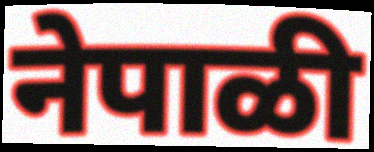
नेपाळी